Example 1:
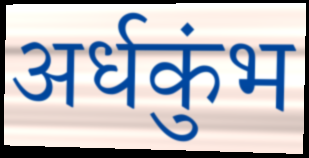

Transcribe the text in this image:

अर्धकुंभ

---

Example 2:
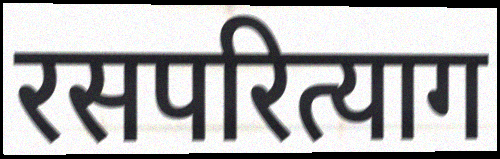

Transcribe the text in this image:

रसपरित्याग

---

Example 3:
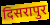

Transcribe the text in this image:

दिसरापुर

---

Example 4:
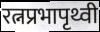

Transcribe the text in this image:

रत्नप्रभापृथ्वी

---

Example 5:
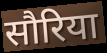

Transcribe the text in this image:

सौरिया